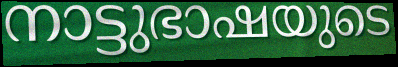
നാട്ടുഭാഷയുടെ